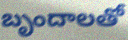
బృందాలతో